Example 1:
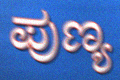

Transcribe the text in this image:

ಪುಣ್ಯ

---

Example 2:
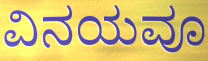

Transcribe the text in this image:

ವಿನಯವೂ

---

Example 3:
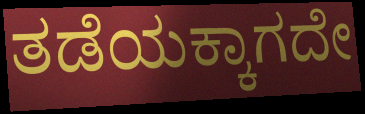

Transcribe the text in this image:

ತಡೆಯಕ್ಕಾಗದೇ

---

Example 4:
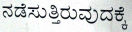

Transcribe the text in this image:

ನಡೆಸುತ್ತಿರುವುದಕ್ಕೆ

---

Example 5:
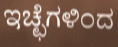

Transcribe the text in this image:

ಇಚ್ಛೆಗಳಿಂದ